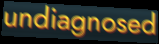
undiagnosed